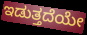
ಇಡುತ್ತದೆಯೇ